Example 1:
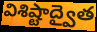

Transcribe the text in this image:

విశిష్టాద్వైత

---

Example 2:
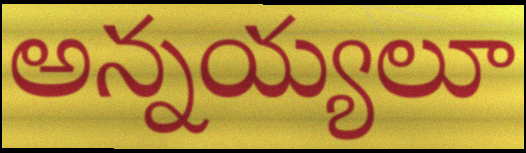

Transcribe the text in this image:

అన్నయ్యలూ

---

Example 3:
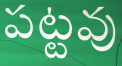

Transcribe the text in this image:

పట్టవు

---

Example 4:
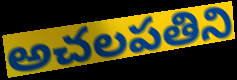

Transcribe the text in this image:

అచలపతిని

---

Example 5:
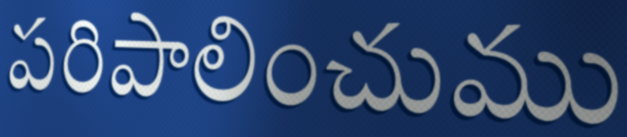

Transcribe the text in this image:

పరిపాలించుము